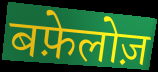
बफ़ेलोज़